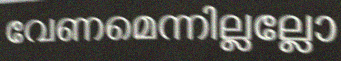
വേണമെന്നില്ലല്ലോ